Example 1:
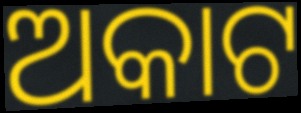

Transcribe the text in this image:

ଅକାଟ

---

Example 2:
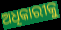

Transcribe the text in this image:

ଅଧିକାରୀକୁ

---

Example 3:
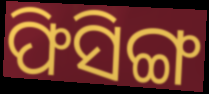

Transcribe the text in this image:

ଫିସିଙ୍ଗ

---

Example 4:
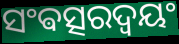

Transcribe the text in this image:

ସଂଵତ୍ସରଦ୍ଵୟଂ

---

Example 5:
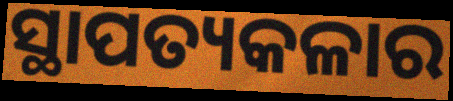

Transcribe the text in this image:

ସ୍ଥାପତ୍ୟକଳାର